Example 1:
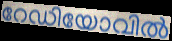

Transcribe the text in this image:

റേഡിയോവിൽ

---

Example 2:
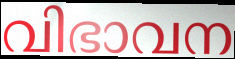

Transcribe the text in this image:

വിഭാവന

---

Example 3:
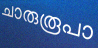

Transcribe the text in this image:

ചാരുരൂപാ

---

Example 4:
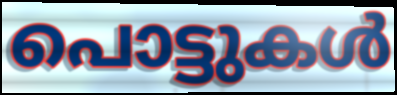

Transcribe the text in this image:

പൊട്ടുകൾ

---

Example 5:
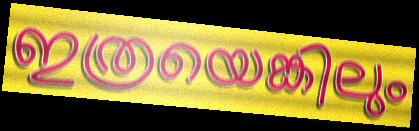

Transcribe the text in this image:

ഇത്രയെങ്കിലും